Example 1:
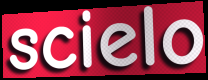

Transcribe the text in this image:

scielo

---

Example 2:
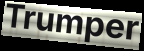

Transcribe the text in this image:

Trumper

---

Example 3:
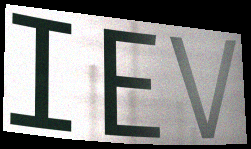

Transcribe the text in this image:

IEV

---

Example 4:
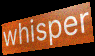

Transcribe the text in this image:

whisper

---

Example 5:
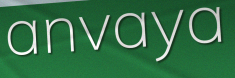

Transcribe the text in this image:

anvaya